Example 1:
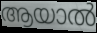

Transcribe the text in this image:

ആയാൽ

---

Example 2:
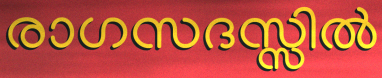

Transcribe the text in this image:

രാഗസദസ്സിൽ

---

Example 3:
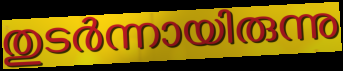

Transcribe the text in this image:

തുടർന്നായിരുന്നു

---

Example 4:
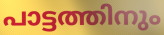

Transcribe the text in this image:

പാട്ടത്തിനും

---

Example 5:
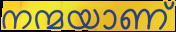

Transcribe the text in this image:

നന്മയാണ്